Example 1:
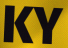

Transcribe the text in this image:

KY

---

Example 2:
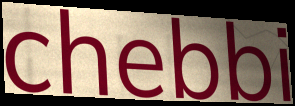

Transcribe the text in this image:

chebbi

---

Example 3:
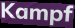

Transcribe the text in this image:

Kampf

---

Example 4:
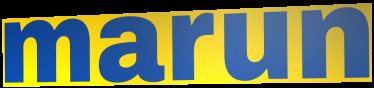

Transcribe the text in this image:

marun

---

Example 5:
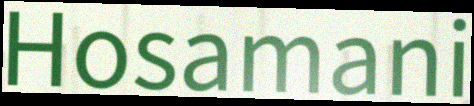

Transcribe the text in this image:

Hosamani